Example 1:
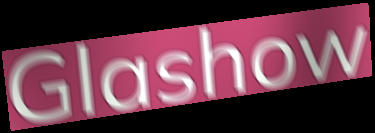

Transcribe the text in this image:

Glashow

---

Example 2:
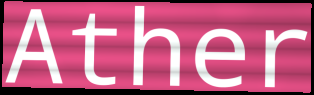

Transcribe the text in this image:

Ather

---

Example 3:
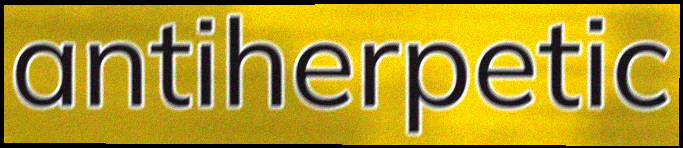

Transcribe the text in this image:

antiherpetic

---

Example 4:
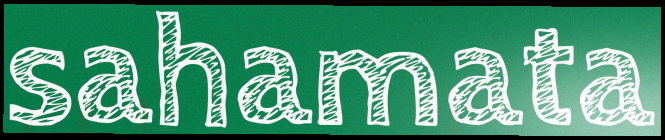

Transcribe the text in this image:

sahamata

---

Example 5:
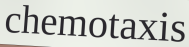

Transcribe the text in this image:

chemotaxis